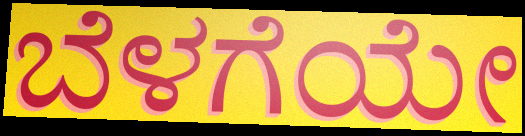
ಬೆಳಗೆಯೇ